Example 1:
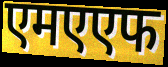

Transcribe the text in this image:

एमएएफ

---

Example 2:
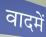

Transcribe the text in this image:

वादमें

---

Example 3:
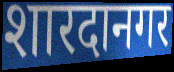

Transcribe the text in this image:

शारदानगर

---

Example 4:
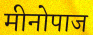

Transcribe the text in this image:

मीनोपाज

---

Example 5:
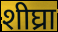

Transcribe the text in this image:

शीघ्रा